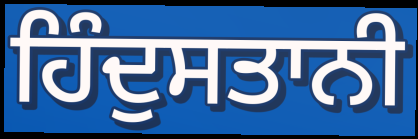
ਹਿੰਦੁਸਤਾਨੀ